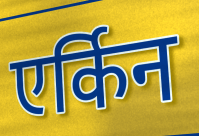
एर्किन